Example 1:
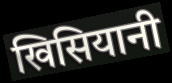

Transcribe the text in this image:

खिसियानी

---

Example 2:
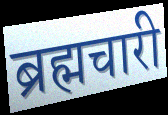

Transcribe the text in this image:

ब्रह्मचारी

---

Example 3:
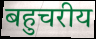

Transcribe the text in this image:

बहुचरीय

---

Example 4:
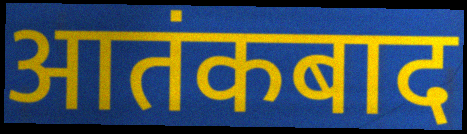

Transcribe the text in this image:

आतंकबाद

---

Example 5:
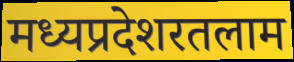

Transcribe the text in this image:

मध्यप्रदेशरतलाम